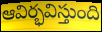
ఆవిర్భవిస్తుంది